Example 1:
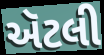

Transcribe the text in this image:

ઍટલી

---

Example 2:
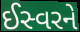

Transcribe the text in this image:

ઈસ્વરને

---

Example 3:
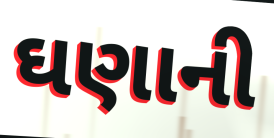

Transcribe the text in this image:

ઘણાની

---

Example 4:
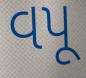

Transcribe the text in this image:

વપૂ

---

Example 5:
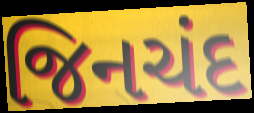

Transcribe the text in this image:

જિનચંદ